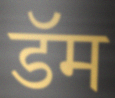
डॅम